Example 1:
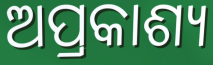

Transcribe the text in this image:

ଅପ୍ରକାଶ୍ୟ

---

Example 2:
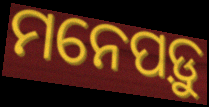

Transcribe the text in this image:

ମନେପଡ଼ୁ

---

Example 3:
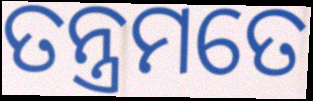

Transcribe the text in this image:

ତନ୍ତ୍ରମତେ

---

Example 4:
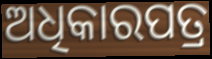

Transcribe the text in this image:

ଅଧିକାରପତ୍ର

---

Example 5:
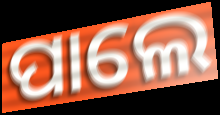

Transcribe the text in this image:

ପାଲେ